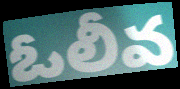
ఓలీవ